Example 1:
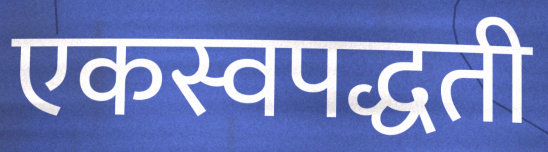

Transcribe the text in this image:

एकस्वपद्धती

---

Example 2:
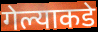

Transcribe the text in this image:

गेल्याकडे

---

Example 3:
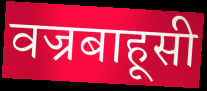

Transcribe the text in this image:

वज्रबाहूसी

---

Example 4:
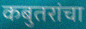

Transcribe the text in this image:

कबुतरांचा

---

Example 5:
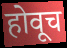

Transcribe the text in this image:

होवूच